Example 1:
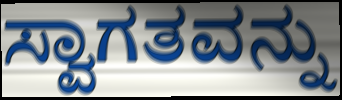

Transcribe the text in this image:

ಸ್ವಾಗತವನ್ನು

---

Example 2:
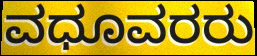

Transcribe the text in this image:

ವಧೂವರರು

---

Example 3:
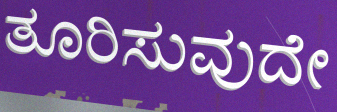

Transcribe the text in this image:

ತೂರಿಸುವುದೇ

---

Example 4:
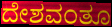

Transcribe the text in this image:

ದೇಶವಂತೂ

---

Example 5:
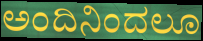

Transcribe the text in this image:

ಅಂದಿನಿಂದಲೂ